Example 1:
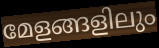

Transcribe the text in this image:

മേളങ്ങളിലും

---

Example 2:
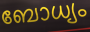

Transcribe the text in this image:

ബോധ്യം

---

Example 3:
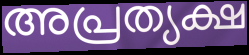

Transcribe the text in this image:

അപ്രത്യക്ഷ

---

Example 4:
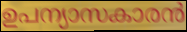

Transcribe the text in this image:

ഉപന്യാസകാരൻ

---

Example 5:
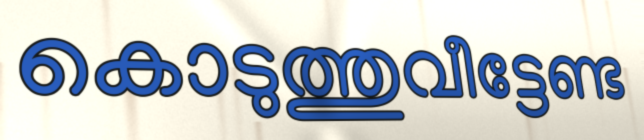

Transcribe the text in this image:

കൊടുത്തുവീട്ടേണ്ട